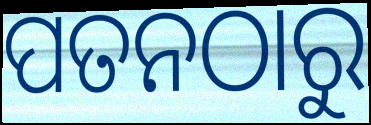
ପତନଠାରୁ